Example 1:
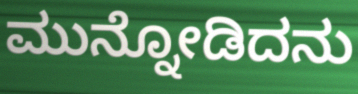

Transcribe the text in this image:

ಮುನ್ನೋಡಿದನು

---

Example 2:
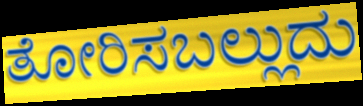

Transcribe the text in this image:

ತೋರಿಸಬಲ್ಲುದು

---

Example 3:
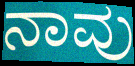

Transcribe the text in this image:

ನಾವು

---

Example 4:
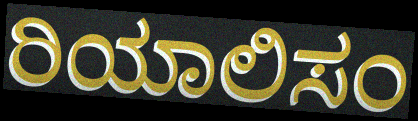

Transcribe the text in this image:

ರಿಯಾಲಿಸಂ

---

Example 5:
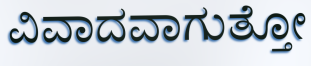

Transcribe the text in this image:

ವಿವಾದವಾಗುತ್ತೋ